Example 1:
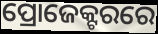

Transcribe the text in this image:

ପ୍ରୋଜେକ୍ଟରରେ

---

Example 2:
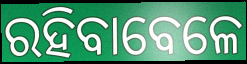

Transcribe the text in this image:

ରହିବାବେଳେ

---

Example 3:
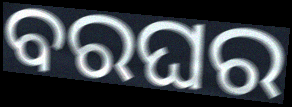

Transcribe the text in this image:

ବରଘର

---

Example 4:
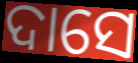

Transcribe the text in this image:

ଦାସେ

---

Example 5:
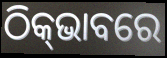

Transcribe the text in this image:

ଠିକ୍‌ଭାବରେ